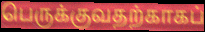
பெருக்குவதற்காகப்